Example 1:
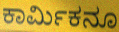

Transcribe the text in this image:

ಕಾರ್ಮಿಕನೂ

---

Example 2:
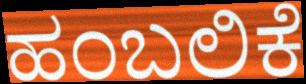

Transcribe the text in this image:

ಹಂಬಲಿಕೆ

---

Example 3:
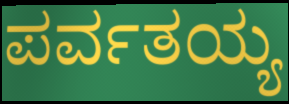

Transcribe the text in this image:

ಪರ್ವತಯ್ಯ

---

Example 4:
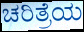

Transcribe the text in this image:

ಚರಿತ್ರೆಯ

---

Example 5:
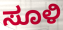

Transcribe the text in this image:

ಸೂಳಿ